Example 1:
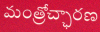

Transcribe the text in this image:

మంత్రోచ్ఛారణ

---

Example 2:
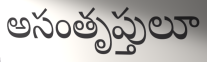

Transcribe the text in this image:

అసంతృప్తులూ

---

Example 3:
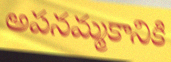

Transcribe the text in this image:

అపనమ్మకానికి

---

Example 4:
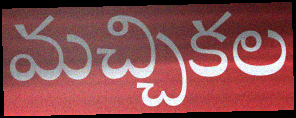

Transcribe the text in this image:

మచ్చికల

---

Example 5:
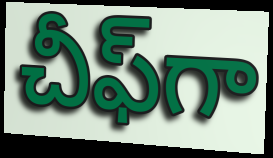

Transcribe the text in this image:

చీఫ్‌గా